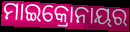
ମାଇକ୍ରୋନାୟର